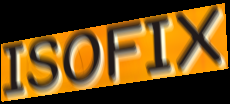
ISOFIX